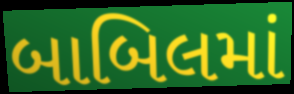
બાબિલમાં